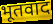
भूतवाद